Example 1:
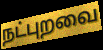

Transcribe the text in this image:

நட்புறவை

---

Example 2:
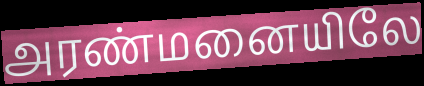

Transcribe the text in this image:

அரண்மனையிலே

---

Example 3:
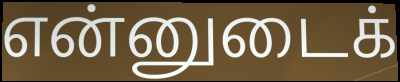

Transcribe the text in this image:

என்னுடைக்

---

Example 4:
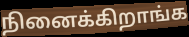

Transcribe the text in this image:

நினைக்கிறாங்க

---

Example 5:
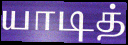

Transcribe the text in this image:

யாடித்